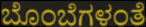
ಬೊಂಬೆಗಳಂತೆ